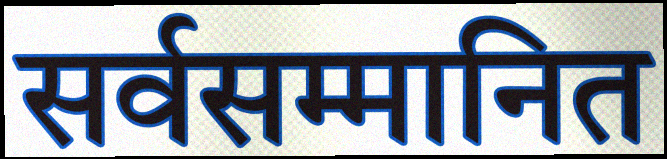
सर्वसम्मानित